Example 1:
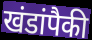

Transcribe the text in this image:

खंडांपैकी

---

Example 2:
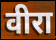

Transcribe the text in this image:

वीरा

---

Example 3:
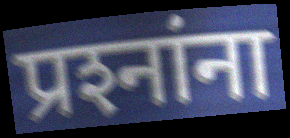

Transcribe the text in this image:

प्रश्‍नांना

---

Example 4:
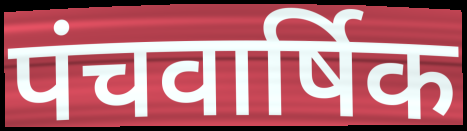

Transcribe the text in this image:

पंचवार्षिक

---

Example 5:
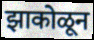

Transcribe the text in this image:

झाकोळून